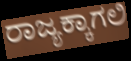
ರಾಜ್ಯಕ್ಕಾಗಲಿ